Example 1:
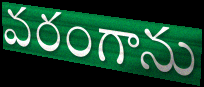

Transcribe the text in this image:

వరంగాను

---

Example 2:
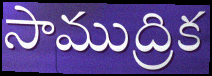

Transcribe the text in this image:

సాముద్రిక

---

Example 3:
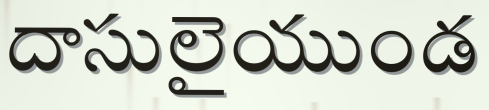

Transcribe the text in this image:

దాసులైయుండ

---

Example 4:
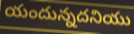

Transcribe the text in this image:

యందున్నదనియు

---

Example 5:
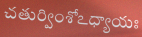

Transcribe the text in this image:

చతుర్వింశోఽధ్యాయః